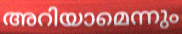
അറിയാമെന്നും